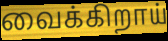
வைக்கிறாய்